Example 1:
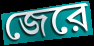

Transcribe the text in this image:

জেরে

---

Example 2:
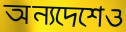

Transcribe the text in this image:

অন্যদেশেও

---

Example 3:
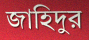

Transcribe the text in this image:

জাহিদুর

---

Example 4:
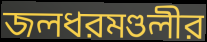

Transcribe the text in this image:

জলধরমণ্ডলীর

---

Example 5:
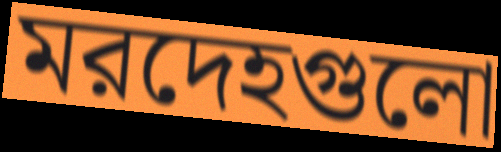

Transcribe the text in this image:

মরদেহগুলো